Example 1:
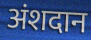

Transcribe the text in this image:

अंशदान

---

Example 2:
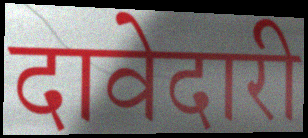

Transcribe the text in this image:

दावेदारी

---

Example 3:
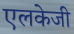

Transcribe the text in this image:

एलकेजी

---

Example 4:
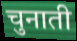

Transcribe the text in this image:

चुनाती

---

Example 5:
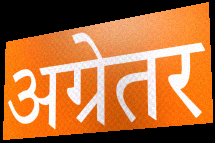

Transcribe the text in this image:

अग्रेतर